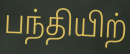
பந்தியிற்